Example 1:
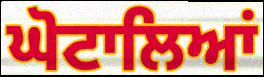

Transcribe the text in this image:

ਘੋਟਾਲਿਆਂ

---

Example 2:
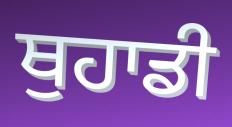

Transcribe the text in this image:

ਥੁਹਾਡੀ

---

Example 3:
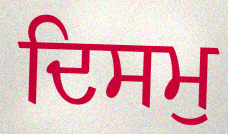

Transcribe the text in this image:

ਦਿਸਮੁ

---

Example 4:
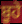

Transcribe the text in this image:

ਬੂਹੇ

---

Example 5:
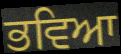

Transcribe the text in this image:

ਭਵਿਆ